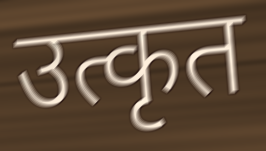
उत्कृत